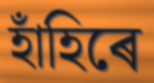
হাঁহিৰে